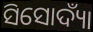
ସିସୋଦ୍ୟାଁ